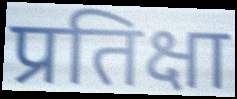
प्रतिक्षा